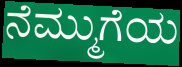
ನೆಮ್ಮುಗೆಯ